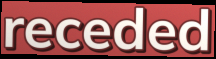
receded